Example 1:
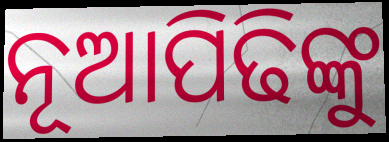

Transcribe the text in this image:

ନୂଆପିଢିଙ୍କୁ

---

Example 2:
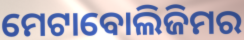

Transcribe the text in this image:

ମେଟାବୋଲିଜିମର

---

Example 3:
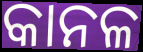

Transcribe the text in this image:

କାନଳ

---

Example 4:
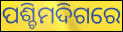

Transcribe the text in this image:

ପଶ୍ଚିମଦିଗରେ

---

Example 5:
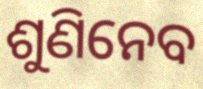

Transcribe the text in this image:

ଶୁଣିନେବ